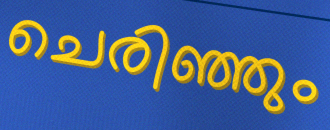
ചെരിഞ്ഞും